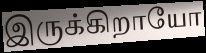
இருக்கிறாயோ